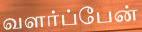
வளர்ப்பேன்